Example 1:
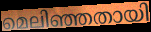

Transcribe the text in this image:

മെലിഞ്ഞതായി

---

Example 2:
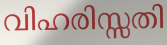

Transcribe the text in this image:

വിഹരിസ്സതി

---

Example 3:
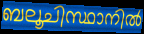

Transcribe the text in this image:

ബലൂചിസ്ഥാനിൽ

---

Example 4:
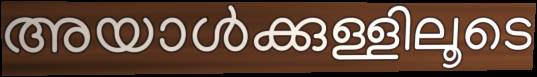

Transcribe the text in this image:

അയാൾക്കുള്ളിലൂടെ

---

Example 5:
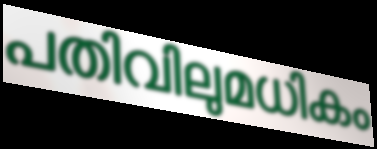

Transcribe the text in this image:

പതിവിലുമധികം